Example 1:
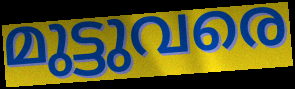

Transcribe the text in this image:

മുട്ടുവരെ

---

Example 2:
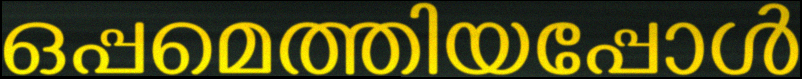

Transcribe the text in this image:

ഒപ്പമെത്തിയപ്പോൾ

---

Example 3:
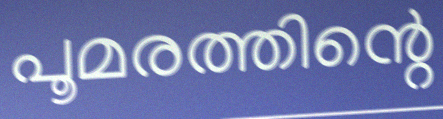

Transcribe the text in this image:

പൂമരത്തിന്റെ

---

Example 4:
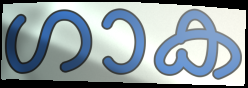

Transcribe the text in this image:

ഗാക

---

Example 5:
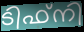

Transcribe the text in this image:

ടിഫ്നി